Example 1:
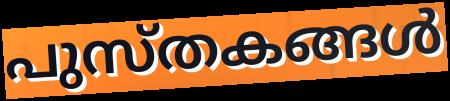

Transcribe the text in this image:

പുസ്തകങ്ങൾ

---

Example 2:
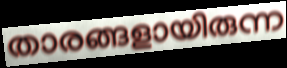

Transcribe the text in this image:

താരങ്ങളായിരുന്ന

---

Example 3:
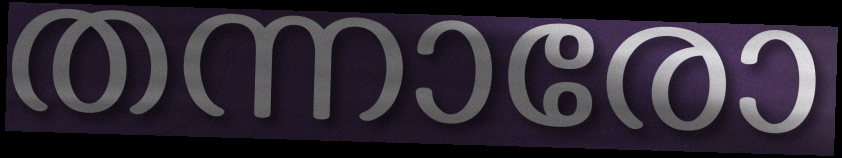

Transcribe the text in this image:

തന്നാരോ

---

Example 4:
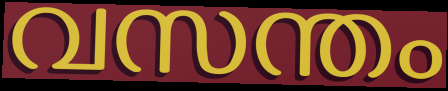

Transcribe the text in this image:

വസന്തം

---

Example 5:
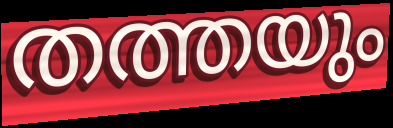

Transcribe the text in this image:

തത്തയും